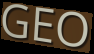
GEO